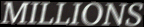
MILLIONS